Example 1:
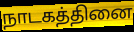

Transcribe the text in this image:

நாடகத்தினை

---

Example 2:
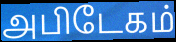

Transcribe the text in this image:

அபிடேகம்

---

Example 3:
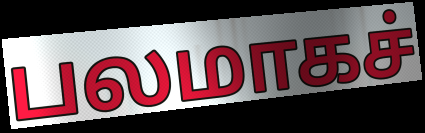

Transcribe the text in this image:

பலமாகச்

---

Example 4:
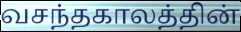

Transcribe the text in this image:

வசந்தகாலத்தின்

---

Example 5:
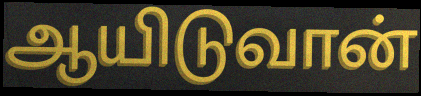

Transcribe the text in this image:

ஆயிடுவான்